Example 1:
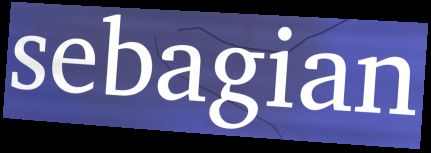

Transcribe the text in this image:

sebagian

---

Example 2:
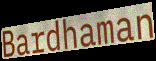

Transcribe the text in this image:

Bardhaman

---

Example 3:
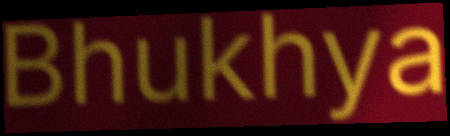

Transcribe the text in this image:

Bhukhya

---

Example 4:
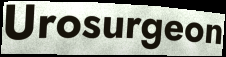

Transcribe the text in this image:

Urosurgeon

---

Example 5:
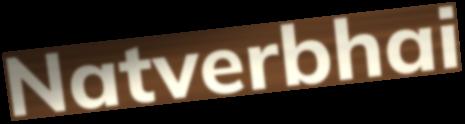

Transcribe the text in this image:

Natverbhai